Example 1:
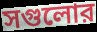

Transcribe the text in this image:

সগুলোর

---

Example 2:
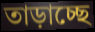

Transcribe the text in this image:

তাড়াচ্ছে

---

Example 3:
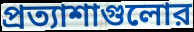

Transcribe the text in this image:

প্রত্যাশাগুলোর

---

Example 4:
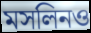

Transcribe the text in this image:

মসলিনও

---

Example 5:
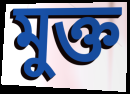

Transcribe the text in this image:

মুক্ত